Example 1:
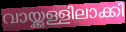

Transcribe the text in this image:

വായ്ക്കുള്ളിലാക്കി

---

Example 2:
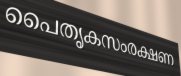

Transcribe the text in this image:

പൈതൃകസംരക്ഷണ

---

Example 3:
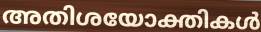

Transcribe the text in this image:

അതിശയോക്തികൾ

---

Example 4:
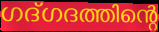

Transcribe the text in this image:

ഗദ്ഗദത്തിന്റെ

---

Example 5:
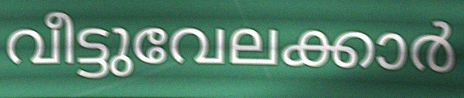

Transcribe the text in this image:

വീട്ടുവേലക്കാർ